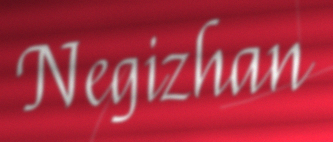
Negizhan